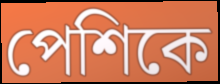
পেশিকে